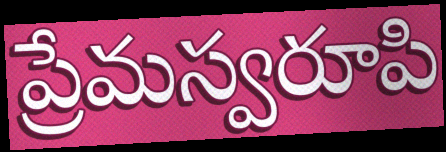
ప్రేమస్వరూపి